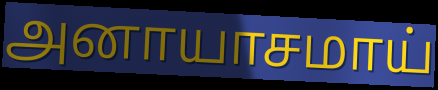
அனாயாசமாய்